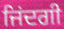
ਜਿਂਦਗੀ